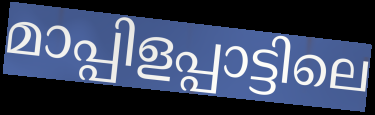
മാപ്പിളപ്പാട്ടിലെ